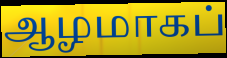
ஆழமாகப்